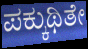
ಪಕ್ಕುಥಿತೇ